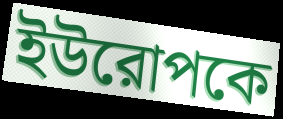
ইউরোপকে